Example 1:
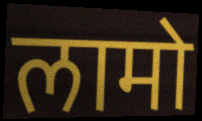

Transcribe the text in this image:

लामो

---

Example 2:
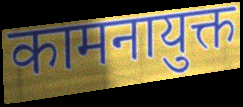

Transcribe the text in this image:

कामनायुक्त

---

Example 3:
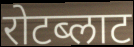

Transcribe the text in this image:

रोटब्लाट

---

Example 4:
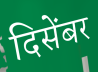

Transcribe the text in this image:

दिसेंबर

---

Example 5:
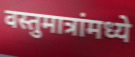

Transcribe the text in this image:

वस्तुमात्रांमध्ये